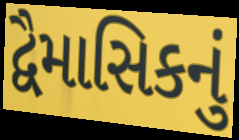
દ્વૈમાસિકનું